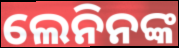
ଲେନିନଙ୍କ